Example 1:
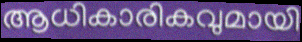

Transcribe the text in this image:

ആധികാരികവുമായി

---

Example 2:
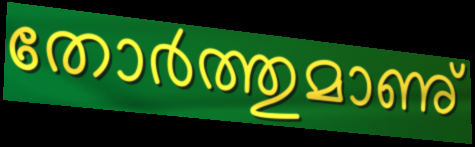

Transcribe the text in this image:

തോർത്തുമാണു്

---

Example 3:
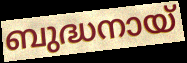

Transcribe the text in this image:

ബുദ്ധനായ്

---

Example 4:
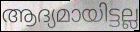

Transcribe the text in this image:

ആദ്യമായിട്ടല്ല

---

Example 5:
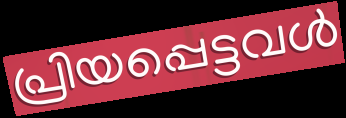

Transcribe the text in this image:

പ്രിയപ്പെട്ടവൾ